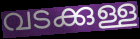
വടക്കുള്ള